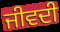
ਜੀਵਦੀ